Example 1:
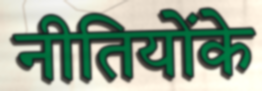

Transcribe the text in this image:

नीतियोंके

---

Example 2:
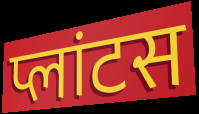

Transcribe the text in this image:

प्लांटस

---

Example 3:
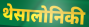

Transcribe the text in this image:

थेसालोनिकी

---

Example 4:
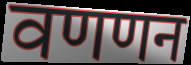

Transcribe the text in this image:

वणणन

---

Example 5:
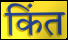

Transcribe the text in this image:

किंत